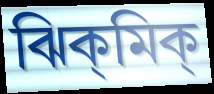
ঝিক্‌মিক্